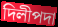
দিলীপদা